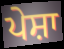
ਪੇਸ਼ਾ